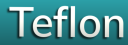
Teflon